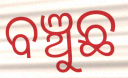
ବଞ୍ଚୁଛ